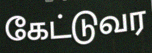
கேட்டுவர